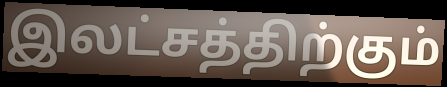
இலட்சத்திற்கும்